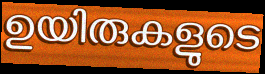
ഉയിരുകളുടെ